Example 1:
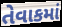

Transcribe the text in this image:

તેવાકમાં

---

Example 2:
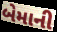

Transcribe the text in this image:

બેમાની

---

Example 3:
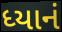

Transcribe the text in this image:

ધ્યાનં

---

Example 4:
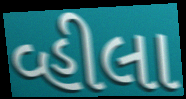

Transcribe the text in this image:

વ્હીલા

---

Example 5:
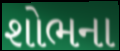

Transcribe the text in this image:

શોભના